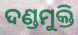
ଦଣ୍ଡମୁକ୍ତି